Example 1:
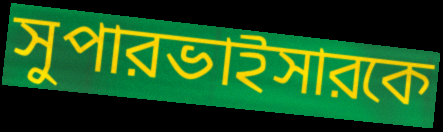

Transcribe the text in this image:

সুপারভাইসারকে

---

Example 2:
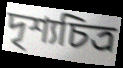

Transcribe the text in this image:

দৃশ্যচিত্র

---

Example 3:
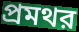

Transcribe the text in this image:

প্রমথর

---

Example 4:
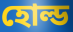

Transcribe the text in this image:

হোল্ড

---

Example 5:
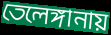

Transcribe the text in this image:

তেলেঙ্গানায়